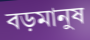
বড়মানুষ